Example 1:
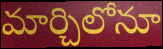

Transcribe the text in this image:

మార్చిలోనూ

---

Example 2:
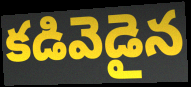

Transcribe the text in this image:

కడివెడైన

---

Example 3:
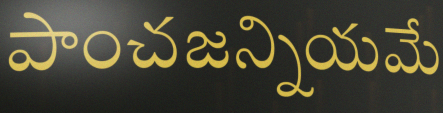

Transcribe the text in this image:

పాంచజన్నియమే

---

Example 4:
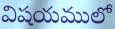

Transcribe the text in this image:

విషయములో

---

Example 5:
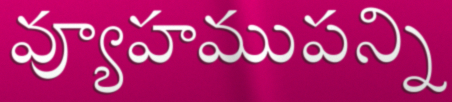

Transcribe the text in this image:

వ్యూహముపన్ని